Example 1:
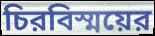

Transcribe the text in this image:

চিরবিস্ময়ের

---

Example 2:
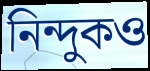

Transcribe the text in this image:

নিন্দুকও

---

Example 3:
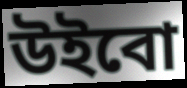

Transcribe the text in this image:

উইবো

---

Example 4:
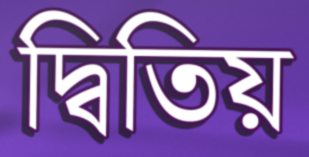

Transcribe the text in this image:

দ্বিতিয়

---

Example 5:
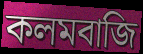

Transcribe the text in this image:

কলমবাজি